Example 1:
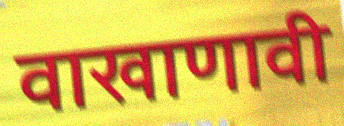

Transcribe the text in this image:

वाखाणावी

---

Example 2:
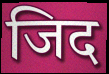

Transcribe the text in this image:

जिद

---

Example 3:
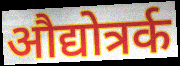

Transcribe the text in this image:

औद्योत्रर्क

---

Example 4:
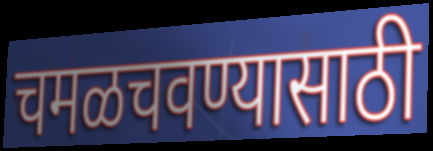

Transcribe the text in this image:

चमळचवण्यासाठी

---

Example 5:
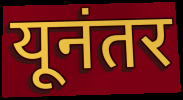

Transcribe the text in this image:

यूनंतर